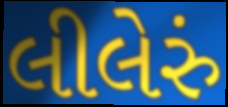
લીલેરું